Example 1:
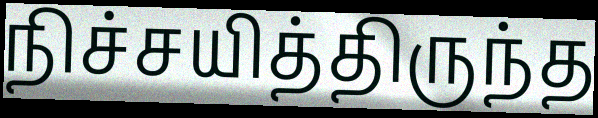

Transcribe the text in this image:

நிச்சயித்திருந்த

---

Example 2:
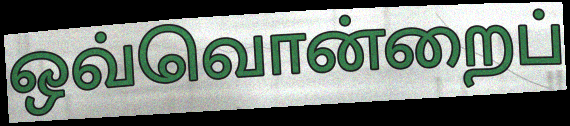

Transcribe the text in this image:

ஒவ்வொன்றைப்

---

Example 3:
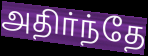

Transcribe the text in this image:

அதிர்ந்தே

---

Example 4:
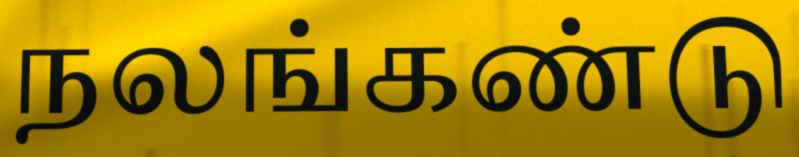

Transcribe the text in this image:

நலங்கண்டு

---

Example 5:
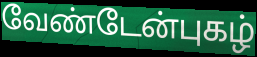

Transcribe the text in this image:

வேண்டேன்புகழ்